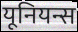
यूनियन्स